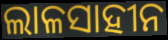
ଲାଳସାହୀନ